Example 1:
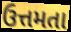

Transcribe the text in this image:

ઉત્તમતા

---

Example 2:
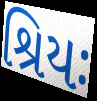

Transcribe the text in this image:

શ્રિયઃ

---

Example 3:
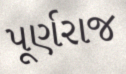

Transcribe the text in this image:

પૂર્ણરાજ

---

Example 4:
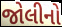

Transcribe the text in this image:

જોલીનો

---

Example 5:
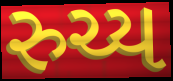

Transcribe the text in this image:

રુચ્ય